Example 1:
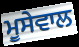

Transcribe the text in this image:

ਮੂਸੇਵਾਲ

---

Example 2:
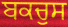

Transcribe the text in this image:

ਬਕਚੁਸ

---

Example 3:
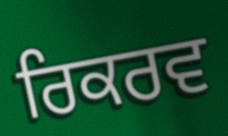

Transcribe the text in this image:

ਰਿਕਰਵ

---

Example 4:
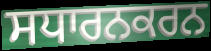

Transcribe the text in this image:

ਸਧਾਰਨਕਰਨ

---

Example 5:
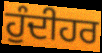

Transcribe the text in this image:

ਹੁੰਦੀਹਰ